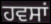
ਹਵਸਾਂ